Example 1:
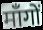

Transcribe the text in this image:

माँगों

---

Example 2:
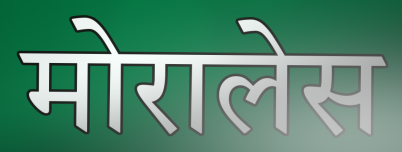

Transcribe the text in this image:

मोरालेस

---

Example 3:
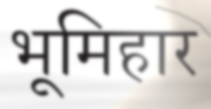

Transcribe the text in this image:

भूमिहार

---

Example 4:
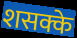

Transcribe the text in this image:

शसक्के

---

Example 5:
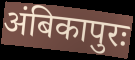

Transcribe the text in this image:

अंबिकापुरः